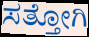
ಸತ್ತೋಗಿ